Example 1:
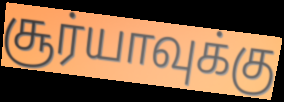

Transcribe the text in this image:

சூர்யாவுக்கு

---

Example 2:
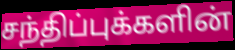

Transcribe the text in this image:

சந்திப்புக்களின்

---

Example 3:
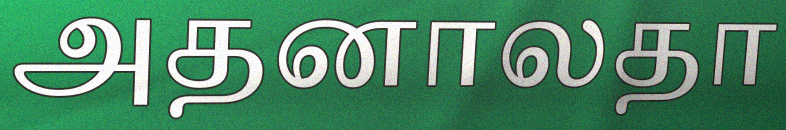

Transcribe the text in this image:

அதனாலதா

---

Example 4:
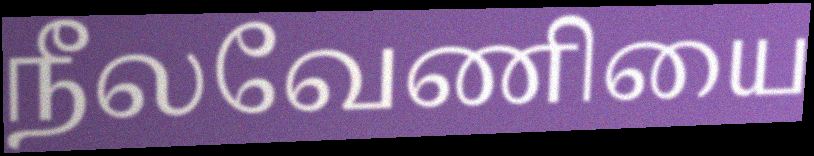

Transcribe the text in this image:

நீலவேணியை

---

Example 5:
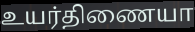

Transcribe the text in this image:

உயர்திணையா